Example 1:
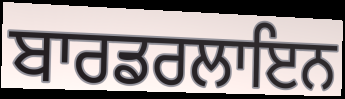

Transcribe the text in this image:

ਬਾਰਡਰਲਾਇਨ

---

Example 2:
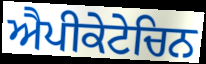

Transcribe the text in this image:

ਐਪੀਕੇਟੇਚਿਨ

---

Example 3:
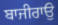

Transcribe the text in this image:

ਬਾਜੀਰਾਉ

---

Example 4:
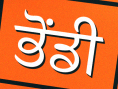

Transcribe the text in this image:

ਭੋਂਡੀ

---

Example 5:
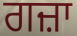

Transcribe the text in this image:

ਗਜ਼ਾ